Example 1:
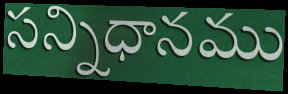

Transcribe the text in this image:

సన్నిధానము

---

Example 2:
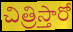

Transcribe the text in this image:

చిత్రిస్తారో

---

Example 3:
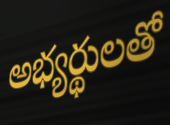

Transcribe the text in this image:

అభ్యర్థులతో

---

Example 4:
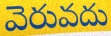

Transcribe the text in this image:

వెరువదు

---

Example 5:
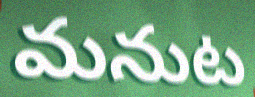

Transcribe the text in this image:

మనుట